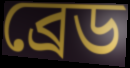
ব্রেড